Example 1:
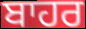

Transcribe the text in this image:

ਬਾਹਰ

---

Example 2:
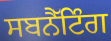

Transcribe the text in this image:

ਸਬਨੈੱਟਿੰਗ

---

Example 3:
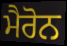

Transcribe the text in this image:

ਮੈਰੋਨ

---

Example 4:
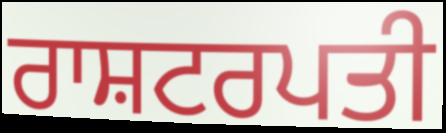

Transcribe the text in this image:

ਰਾਸ਼ਟਰਪਤੀ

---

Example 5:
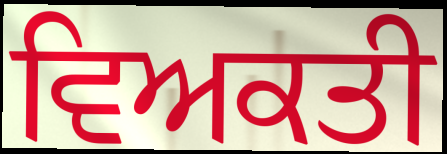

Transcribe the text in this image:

ਵਿਅਕਤੀ